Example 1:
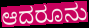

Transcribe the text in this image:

ಆದರೂನು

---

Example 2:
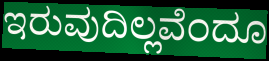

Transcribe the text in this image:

ಇರುವುದಿಲ್ಲವೆಂದೂ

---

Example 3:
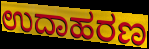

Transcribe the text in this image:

ಉದಾಹರಣ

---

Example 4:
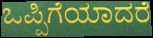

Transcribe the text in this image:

ಒಪ್ಪಿಗೆಯಾದರೆ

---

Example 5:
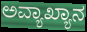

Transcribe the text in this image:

ಅವ್ಯಾಖ್ಯಾನ